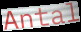
Antal